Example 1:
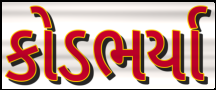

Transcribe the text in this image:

કોડભર્યા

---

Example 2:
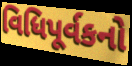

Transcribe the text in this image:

વિધિપૂર્વકનો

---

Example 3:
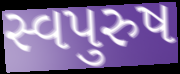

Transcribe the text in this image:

સ્વપુરુષ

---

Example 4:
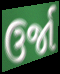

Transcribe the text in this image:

ઉર્જા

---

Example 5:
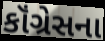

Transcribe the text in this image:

કૉંગ્રેસના